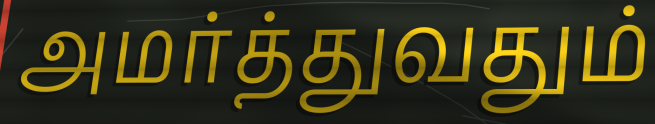
அமர்த்துவதும்